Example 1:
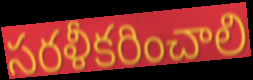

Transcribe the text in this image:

సరళీకరించాలి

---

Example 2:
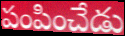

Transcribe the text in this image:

పంపించేడు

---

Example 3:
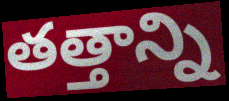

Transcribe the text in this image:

తత్తాన్ని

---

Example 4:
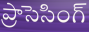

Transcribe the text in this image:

ప్రాసెసింగ్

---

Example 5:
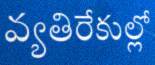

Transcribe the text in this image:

వ్యతిరేకుల్లో